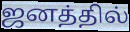
ஜனத்தில்